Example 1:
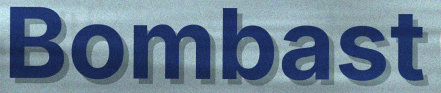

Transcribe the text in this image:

Bombast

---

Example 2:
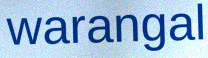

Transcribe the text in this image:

warangal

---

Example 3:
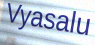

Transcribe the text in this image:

Vyasalu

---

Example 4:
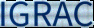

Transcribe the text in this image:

IGRAC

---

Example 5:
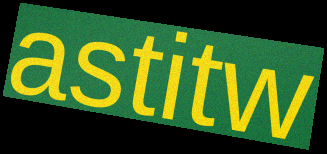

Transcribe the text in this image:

astitw